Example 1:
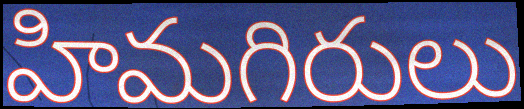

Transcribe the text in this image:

హిమగిరులు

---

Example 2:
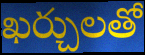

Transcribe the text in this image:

ఖర్చులతో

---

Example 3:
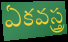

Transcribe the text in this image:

ఏకవస్త్ర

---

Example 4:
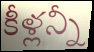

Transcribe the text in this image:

కీళ్లన్నీ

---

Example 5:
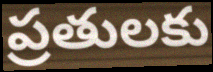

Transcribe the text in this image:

ప్రతులకు